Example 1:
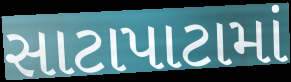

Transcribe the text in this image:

સાટાપાટામાં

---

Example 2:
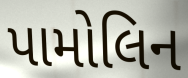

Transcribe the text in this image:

પામોલિન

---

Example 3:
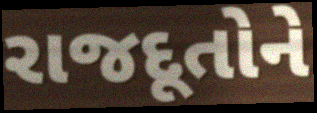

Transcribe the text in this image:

રાજદૂતોને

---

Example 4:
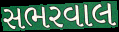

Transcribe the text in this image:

સભરવાલ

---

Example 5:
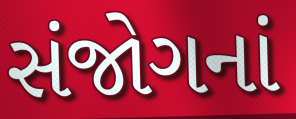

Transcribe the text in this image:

સંજોગનાં